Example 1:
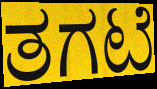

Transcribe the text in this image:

ತಗಟೆ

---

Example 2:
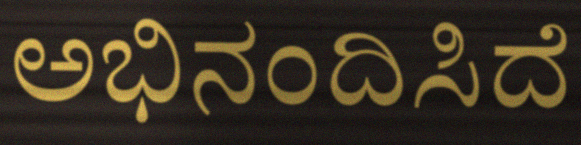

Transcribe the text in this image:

ಅಭಿನಂದಿಸಿದೆ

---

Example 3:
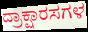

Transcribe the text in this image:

ದ್ರಾಕ್ಷಾರಸಗಳ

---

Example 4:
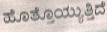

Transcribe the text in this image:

ಹೊತ್ತೊಯ್ಯುತ್ತಿದೆ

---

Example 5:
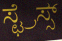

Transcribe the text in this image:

ಸ್ಟ್ರೆಸ್ಸ್